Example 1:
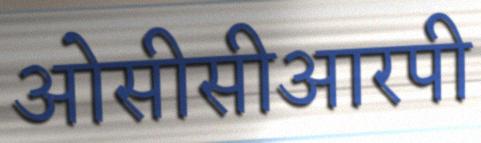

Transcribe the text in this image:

ओसीसीआरपी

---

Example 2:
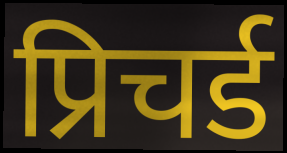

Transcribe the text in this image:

प्रिचर्ड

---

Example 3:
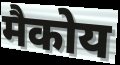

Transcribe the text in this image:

मैकोय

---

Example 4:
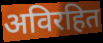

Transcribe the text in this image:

अविरहित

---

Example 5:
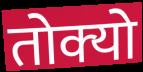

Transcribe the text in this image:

तोक्‍यो